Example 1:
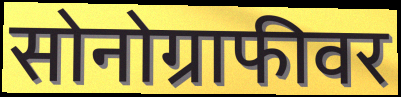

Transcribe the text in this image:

सोनोग्राफीवर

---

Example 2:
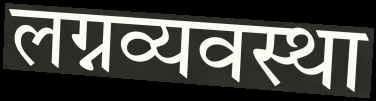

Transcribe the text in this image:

लग्नव्यवस्था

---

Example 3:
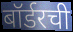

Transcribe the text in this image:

बॉर्डरची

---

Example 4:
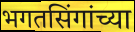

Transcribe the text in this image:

भगतसिंगांच्या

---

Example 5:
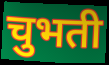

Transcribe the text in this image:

चुभती